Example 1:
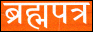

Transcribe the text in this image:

ब्रह्मपत्र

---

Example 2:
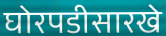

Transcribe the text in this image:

घोरपडीसारखे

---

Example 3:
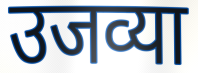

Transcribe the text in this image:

उजव्या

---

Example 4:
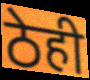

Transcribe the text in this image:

ठेही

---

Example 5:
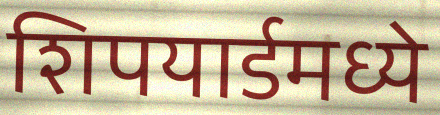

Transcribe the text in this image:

शिपयार्डमध्ये